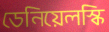
ডেনিয়েলস্কি